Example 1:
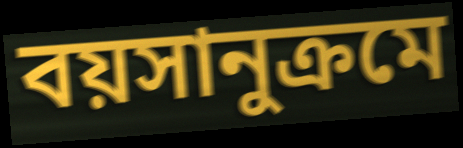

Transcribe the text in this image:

বয়সানুক্রমে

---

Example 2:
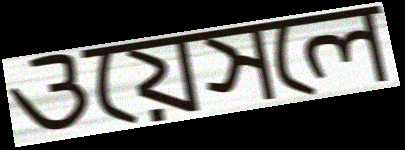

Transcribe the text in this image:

ওয়েসলে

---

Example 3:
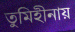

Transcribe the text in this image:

তুমিহীনায়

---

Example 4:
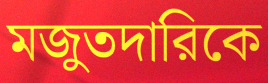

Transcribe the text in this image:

মজুতদারিকে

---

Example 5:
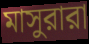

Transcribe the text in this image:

মাসুরারা